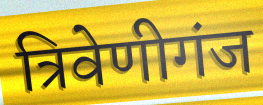
त्रिवेणीगंज